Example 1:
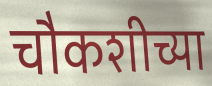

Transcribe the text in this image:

चौकशीच्या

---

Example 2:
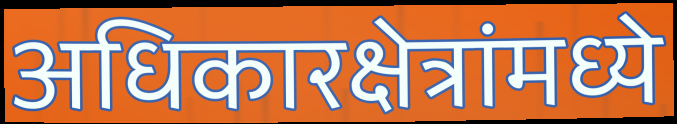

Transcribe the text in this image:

अधिकारक्षेत्रांमध्ये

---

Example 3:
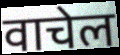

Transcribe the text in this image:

वाचेल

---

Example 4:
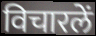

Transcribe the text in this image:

विचारलें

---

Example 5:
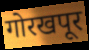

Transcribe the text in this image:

गोरखपूर